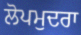
ਲੋਪਮੁਦਰਾ